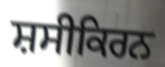
ਸ਼ਸੀਕਿਰਨ